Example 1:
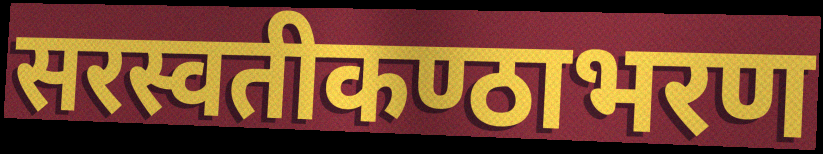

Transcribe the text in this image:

सरस्वतीकण्ठाभरण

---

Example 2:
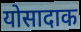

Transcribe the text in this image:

योसादाक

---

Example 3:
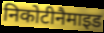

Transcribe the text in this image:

निकोटीनैमाइड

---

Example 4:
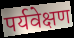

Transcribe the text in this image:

पर्यवेक्षण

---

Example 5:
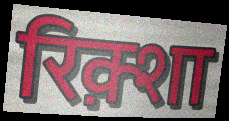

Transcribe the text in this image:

रिक़्शा